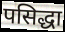
पसिद्धा